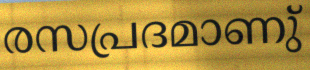
രസപ്രദമാണു്